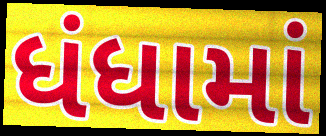
ધંધામાં